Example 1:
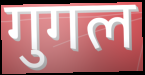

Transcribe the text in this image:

गुगल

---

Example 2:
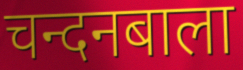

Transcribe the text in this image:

चन्दनबाला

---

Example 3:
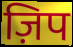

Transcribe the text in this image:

ज़िप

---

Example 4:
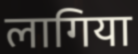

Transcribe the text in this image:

लागिया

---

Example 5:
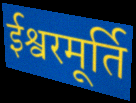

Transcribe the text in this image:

ईश्वरमूर्ति